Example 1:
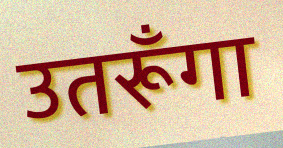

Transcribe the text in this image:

उतरूँगा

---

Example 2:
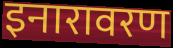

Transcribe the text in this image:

इनारावरण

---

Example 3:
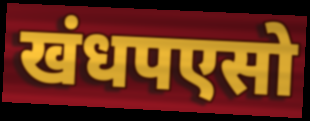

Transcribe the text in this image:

खंधपएसो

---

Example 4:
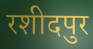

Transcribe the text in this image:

रशीदपुर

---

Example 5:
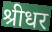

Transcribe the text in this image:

श्रीधर